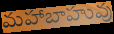
మహాబాహువు